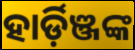
ହାର୍ଡ଼ିଞ୍ଜଙ୍କ